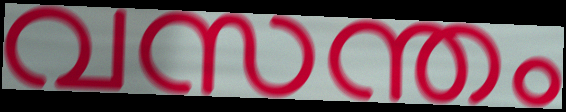
വസന്തം